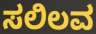
ಸಲಿಲವ